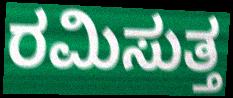
ರಮಿಸುತ್ತ